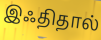
இஃதிதால்